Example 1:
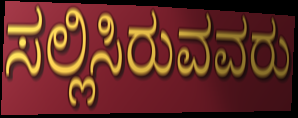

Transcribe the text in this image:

ಸಲ್ಲಿಸಿರುವವರು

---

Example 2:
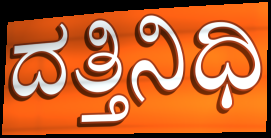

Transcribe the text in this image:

ದತ್ತಿನಿಧಿ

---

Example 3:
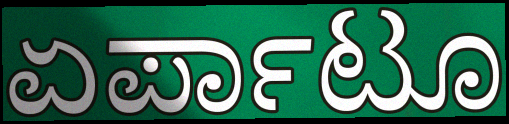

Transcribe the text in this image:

ಏರ್ಪಾಟೂ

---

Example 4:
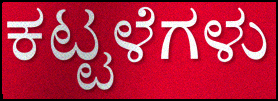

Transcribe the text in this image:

ಕಟ್ಟಳೆಗಳು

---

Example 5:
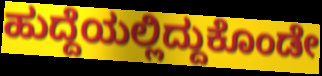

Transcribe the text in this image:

ಹುದ್ದೆಯಲ್ಲಿದ್ದುಕೊಂಡೇ